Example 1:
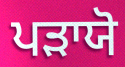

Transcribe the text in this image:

ਪੜਾਯੋ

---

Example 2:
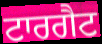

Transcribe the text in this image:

ਟਾਰਗੈਟ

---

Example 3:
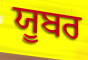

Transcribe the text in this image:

ਯੂਬਰ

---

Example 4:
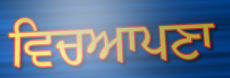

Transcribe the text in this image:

ਵਿਚਆਪਣਾ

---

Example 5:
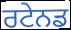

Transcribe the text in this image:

ਰਟੇਨਡ